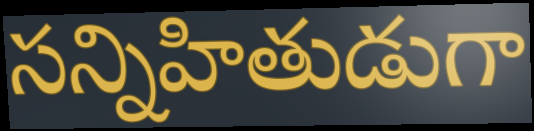
సన్నిహితుడుగా